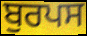
ਬੁਰਪਸ